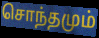
சொந்தமும்